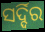
ସର୍ଦ୍ଦିର